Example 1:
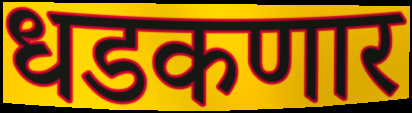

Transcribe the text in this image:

धडकणार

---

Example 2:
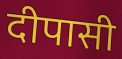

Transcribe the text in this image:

दीपासी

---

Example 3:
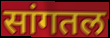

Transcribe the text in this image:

सांगतल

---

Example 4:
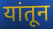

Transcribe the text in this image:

यांतून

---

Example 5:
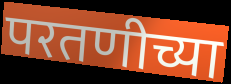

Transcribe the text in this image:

परतणीच्या